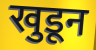
खुडून